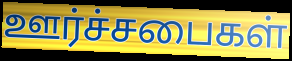
ஊர்ச்சபைகள்